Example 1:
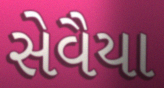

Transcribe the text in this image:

સેવૈયા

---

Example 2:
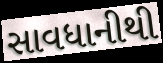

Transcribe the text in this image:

સાવધાનીથી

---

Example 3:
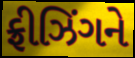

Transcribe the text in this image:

ફ્રીઝિંગને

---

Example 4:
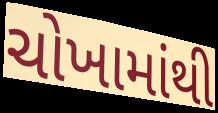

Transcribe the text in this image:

ચોખામાંથી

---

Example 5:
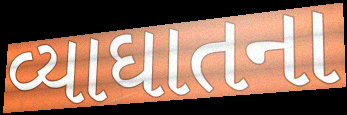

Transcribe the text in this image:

વ્યાઘાતના